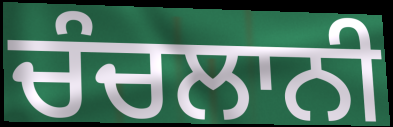
ਚੰਚਲਾਨੀ